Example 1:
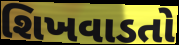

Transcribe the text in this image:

શિખવાડતો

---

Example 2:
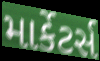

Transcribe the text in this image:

માર્કેટર્સ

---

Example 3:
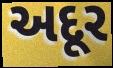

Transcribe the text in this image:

અદૂર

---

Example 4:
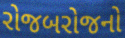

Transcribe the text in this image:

રોજબરોજનો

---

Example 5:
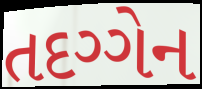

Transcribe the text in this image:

તદગ્ગેન